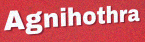
Agnihothra